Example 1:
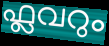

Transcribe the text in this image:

ഫ്ലവറും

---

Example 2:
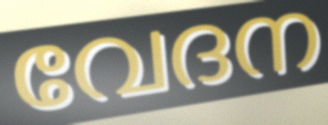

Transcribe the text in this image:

വേദന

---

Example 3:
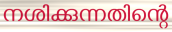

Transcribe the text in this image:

നശിക്കുന്നതിന്റെ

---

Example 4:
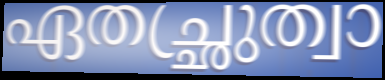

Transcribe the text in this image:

ഏതച്ഛ്രുത്വാ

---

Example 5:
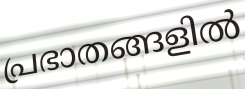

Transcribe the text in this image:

പ്രഭാതങ്ങളിൽ